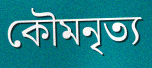
কৌমনৃত্য